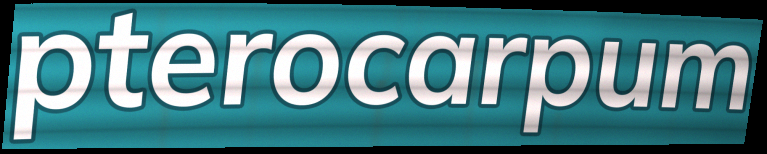
pterocarpum